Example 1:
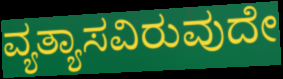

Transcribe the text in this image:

ವ್ಯತ್ಯಾಸವಿರುವುದೇ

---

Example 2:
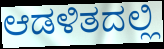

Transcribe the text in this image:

ಆಡಳಿತದಲ್ಲಿ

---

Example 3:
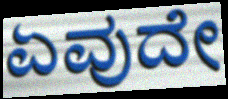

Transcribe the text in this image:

ಏವುದೇ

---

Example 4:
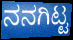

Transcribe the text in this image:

ನನಗಿಟ್ಟ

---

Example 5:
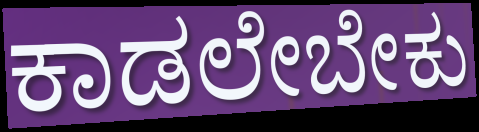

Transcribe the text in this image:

ಕಾಡಲೇಬೇಕು